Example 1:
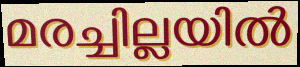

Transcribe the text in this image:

മരച്ചില്ലയിൽ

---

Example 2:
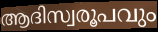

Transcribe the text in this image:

ആദിസ്വരൂപവും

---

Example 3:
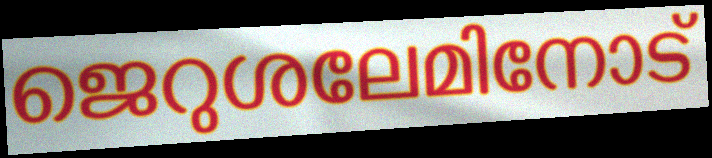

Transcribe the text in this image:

ജെറുശലേമിനോട്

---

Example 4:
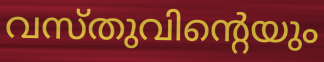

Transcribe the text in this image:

വസ്തുവിന്റെയും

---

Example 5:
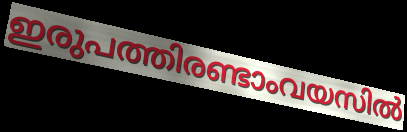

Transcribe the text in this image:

ഇരുപത്തിരണ്ടാംവയസിൽ